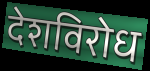
देशविरोध